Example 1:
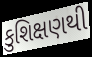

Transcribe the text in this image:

કુશિક્ષણથી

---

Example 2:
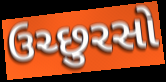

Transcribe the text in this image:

ઉચ્છુરસો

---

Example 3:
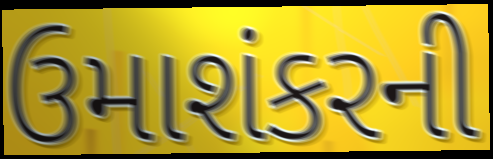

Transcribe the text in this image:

ઉમાશંકરની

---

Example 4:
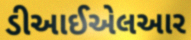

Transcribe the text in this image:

ડીઆઈએલઆર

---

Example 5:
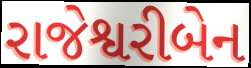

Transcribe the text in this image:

રાજેશ્વરીબેન